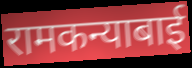
रामकन्याबाई